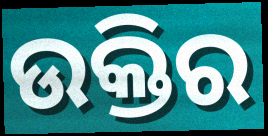
ଉକ୍ତିର